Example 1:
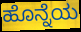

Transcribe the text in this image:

ಹೊನ್ನೆಯ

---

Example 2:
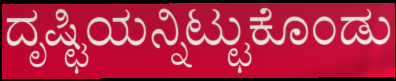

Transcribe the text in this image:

ದೃಷ್ಟಿಯನ್ನಿಟ್ಟುಕೊಂಡು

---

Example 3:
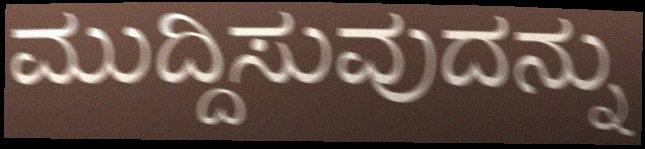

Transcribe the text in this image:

ಮುದ್ದಿಸುವುದನ್ನು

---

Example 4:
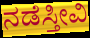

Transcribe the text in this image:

ನಡೆಸ್ತೀವಿ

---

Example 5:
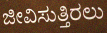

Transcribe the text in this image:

ಜೀವಿಸುತ್ತಿರಲು